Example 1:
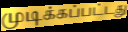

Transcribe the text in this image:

முடிக்கப்பட்டது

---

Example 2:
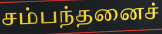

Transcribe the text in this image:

சம்பந்தனைச்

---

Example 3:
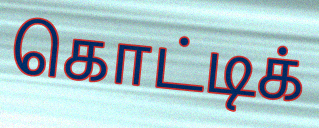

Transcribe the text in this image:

கொட்டிக்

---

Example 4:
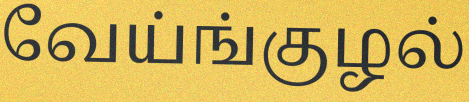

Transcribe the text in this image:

வேய்ங்குழல்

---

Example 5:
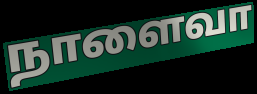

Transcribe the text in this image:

நாளைவா